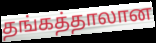
தங்கத்தாலான